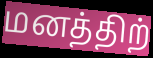
மனத்திற்